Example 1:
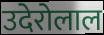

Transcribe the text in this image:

उदेरोलाल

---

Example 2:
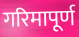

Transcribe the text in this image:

गरिमापूर्ण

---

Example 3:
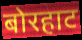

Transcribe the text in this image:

बोरहाट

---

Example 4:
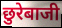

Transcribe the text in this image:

छुरेबाजी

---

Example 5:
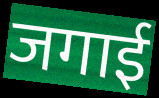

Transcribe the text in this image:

जगाई